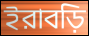
ইরাবড়ি